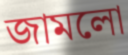
জামলো